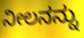
ನೀಲನನ್ನು